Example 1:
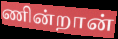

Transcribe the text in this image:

ணின்றான்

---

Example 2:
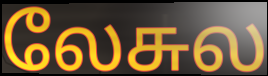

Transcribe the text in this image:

லேசுல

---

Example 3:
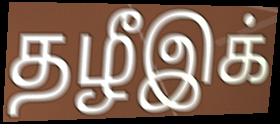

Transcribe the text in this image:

தழீஇக்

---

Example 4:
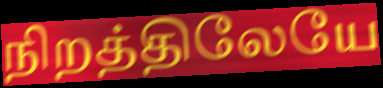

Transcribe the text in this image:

நிறத்திலேயே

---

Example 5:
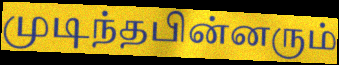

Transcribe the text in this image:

முடிந்தபின்னரும்